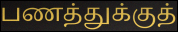
பணத்துக்குத்